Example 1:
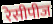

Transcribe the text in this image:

रेसीपीज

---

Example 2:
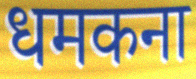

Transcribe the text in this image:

धमकना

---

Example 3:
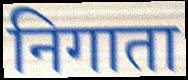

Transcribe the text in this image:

निगाता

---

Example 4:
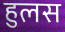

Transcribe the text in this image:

हुलस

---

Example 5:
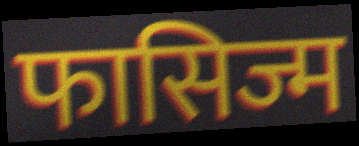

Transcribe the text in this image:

फासिज्म